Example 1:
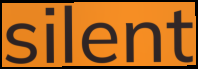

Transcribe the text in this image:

silent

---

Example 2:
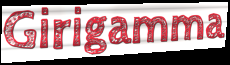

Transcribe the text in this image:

Girigamma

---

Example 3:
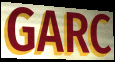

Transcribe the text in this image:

GARC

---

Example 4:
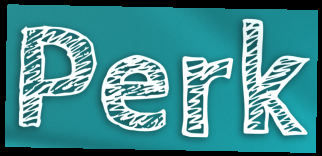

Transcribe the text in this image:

Perk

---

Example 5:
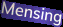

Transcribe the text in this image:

Mensing